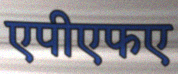
एपीएफए